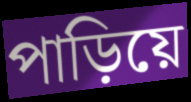
পাড়িয়ে